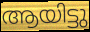
ആയിട്ടു